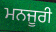
ਮਨਜੂਰੀ